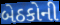
બેઠકોની